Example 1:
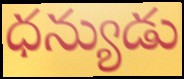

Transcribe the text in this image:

ధన్యుడు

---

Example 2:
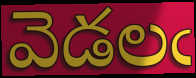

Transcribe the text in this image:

వెడలఁ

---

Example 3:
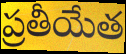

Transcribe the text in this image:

ప్రతీయేత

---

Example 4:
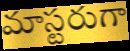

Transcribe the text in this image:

మాస్టరుగా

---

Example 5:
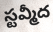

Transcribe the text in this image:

స్టవ్మీద